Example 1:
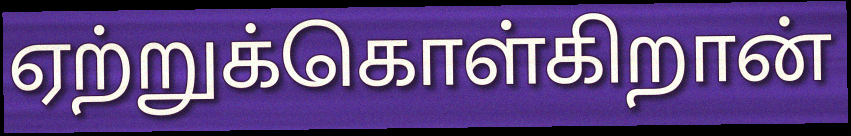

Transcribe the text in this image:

ஏற்றுக்கொள்கிறான்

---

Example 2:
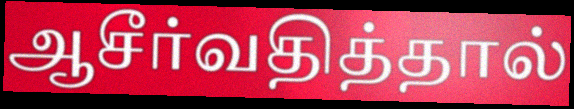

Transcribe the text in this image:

ஆசீர்வதித்தால்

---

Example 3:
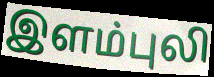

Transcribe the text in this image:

இளம்புலி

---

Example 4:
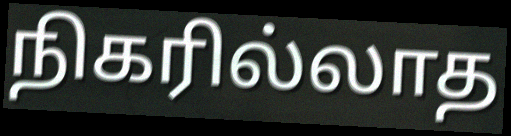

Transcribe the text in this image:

நிகரில்லாத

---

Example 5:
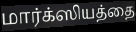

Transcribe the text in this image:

மார்க்ஸியத்தை